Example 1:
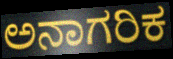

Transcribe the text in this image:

ಅನಾಗರಿಕ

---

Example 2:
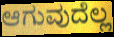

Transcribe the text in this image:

ಆಗುವುದೆಲ್ಲ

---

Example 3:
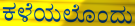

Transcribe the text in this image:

ಕಳೆಯಲೊಂದು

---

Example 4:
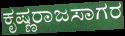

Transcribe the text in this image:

ಕೃಷ್ಣರಾಜಸಾಗರ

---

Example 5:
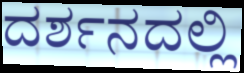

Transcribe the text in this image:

ದರ್ಶನದಲ್ಲಿ